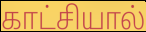
காட்சியால்